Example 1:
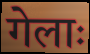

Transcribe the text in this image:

गेलाः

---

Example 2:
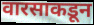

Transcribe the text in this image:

वारसाकडून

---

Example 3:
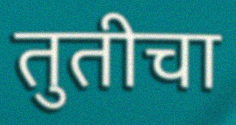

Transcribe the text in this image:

तुतीचा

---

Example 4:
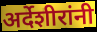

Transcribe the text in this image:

अर्देशीरांनी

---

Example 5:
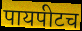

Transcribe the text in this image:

पायपीटच